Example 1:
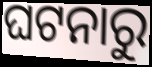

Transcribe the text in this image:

ଘଟନାରୁ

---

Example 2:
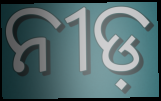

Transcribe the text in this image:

ନୀଡ଼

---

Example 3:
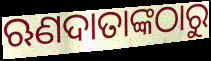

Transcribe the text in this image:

ଋଣଦାତାଙ୍କଠାରୁ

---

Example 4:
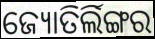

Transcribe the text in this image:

ଜ୍ୟୋତିର୍ଲିଙ୍ଗର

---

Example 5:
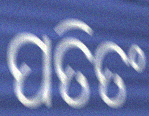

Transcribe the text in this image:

ପତିତଂ